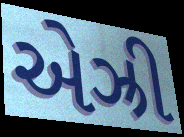
એઝ્રી